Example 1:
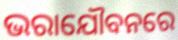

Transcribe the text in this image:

ଭରାଯୌବନରେ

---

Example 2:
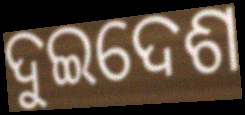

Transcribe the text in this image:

ଦୁଇଦେଶ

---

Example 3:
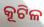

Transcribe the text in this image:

କୂଟିଳ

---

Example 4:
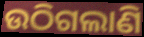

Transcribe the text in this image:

ଉଠିଗଲାଣି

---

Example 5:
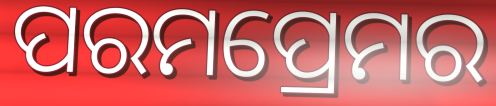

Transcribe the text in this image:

ପରମପ୍ରେମର